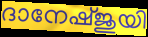
ദാനേഷ്ജുയി